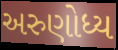
અરુણોધ્ય